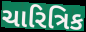
ચારિત્રિક